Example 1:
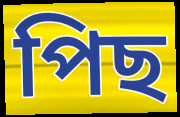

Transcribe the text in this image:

পিছ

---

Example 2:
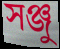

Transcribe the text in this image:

সঞ্জু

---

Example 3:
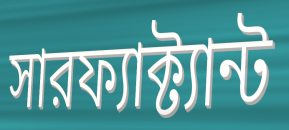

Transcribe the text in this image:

সারফ্যাক্ট্যান্ট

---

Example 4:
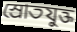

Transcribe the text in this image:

স্রোতযুক্ত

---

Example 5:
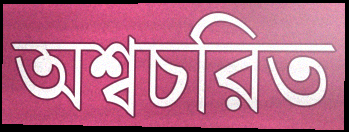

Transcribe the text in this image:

অশ্বচরিত